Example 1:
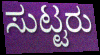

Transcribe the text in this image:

ಸುಟ್ಟರು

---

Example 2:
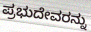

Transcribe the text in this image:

ಪ್ರಭುದೇವರನ್ನು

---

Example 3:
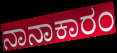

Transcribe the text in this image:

ನಾನಾಕಾರಂ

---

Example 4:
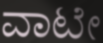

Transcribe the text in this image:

ವಾಟೇ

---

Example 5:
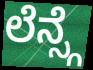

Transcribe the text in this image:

ಲೆನ್ಸ್ಗೆ